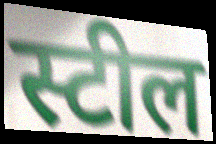
स्टील